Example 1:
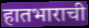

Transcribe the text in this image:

हातभाराची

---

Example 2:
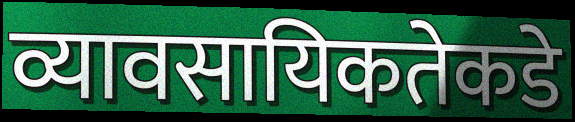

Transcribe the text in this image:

व्यावसायिकतेकडे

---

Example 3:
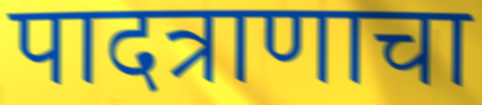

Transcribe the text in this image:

पादत्राणाचा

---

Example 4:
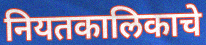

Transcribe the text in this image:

नियतकालिकाचे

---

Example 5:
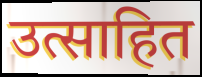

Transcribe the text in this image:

उत्साहित